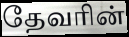
தேவரின்